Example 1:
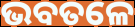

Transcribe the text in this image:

ଭବତଳେ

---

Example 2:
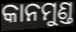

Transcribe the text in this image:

କାନମୁଣ୍ଡ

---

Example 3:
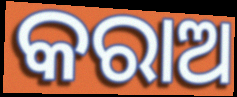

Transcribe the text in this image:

କରାଅ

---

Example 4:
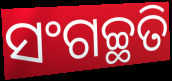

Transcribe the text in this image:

ସଂଗଚ୍ଛତି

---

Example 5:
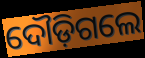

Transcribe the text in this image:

ଦୌଡ଼ିଗଲେ